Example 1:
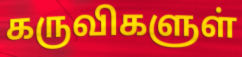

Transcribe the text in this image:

கருவிகளுள்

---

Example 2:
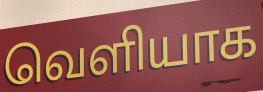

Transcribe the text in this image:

வெளியாக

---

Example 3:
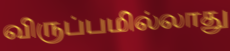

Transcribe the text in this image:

விருப்பமில்லாது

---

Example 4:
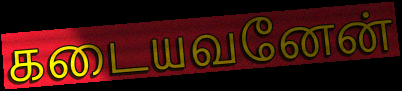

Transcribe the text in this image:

கடையவனேன்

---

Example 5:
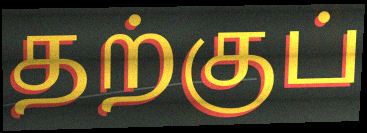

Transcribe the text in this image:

தற்குப்